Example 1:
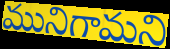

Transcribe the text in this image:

మునిగామని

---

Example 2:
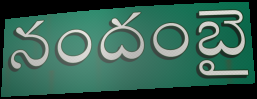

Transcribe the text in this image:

నందంబై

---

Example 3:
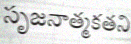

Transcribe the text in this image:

సృజనాత్మకతని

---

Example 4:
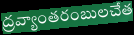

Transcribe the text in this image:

ద్రవ్యాంతరంబులచేత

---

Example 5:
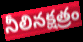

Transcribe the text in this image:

నీలినక్షత్రం